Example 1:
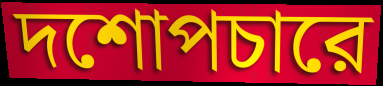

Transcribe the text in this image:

দশোপচারে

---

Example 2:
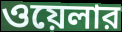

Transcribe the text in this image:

ওয়েলার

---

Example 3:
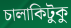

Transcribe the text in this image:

চালাকিটুকু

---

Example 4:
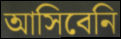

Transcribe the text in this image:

আসিবেনি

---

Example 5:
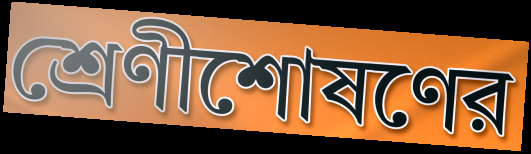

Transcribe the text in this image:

শ্রেণীশোষণের